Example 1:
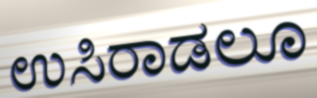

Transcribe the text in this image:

ಉಸಿರಾಡಲೂ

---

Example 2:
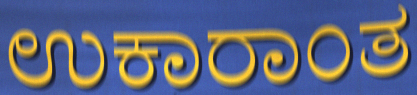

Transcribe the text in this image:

ಉಕಾರಾಂತ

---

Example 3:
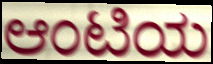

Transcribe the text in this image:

ಆಂಟಿಯ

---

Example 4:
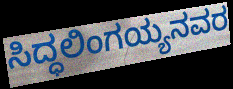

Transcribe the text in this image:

ಸಿದ್ಧಲಿಂಗಯ್ಯನವರ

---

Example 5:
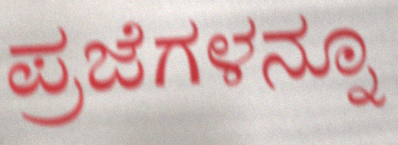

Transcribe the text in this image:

ಪ್ರಜೆಗಳನ್ನೂ